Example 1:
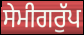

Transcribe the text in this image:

ਸੇਮੀਗਰੁੱਪ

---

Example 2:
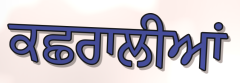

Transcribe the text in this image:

ਕਛਰਾਲੀਆਂ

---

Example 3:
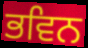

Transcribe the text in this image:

ਭਵਿਨ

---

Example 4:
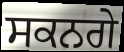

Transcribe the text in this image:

ਸਕਨਗੇ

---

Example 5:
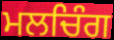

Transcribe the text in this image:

ਮਲਚਿੰਗ